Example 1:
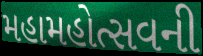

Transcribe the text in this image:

મહામહોત્સવની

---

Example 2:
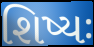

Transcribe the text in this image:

શિષ્યઃ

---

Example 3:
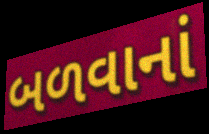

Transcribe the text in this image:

બળવાનાં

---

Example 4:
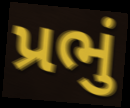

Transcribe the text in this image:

પ્રભું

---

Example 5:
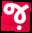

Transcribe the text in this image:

જ઼